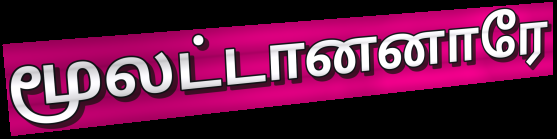
மூலட்டானனாரே